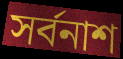
সর্বনাশ